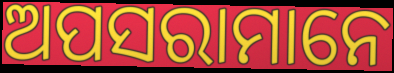
ଅପସରାମାନେ